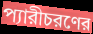
প্যারীচরণের